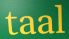
taal